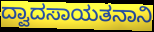
ದ್ವಾದಸಾಯತನಾನಿ